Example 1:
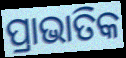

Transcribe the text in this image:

ପ୍ରାଭାତିକ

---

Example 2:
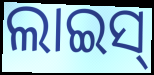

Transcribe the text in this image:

ଲାଇସ୍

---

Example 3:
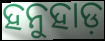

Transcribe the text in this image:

ହନୁହାଡ଼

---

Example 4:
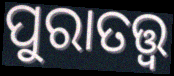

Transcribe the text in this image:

ପୁରାତତ୍ତ୍ୱ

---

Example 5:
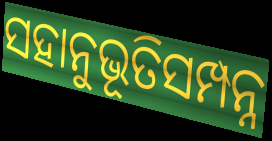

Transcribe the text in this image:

ସହାନୁଭୂତିସମ୍ପନ୍ନ